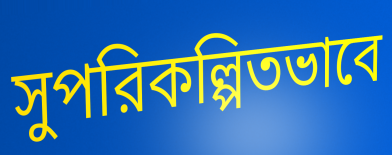
সুপরিকল্পিতভাবে